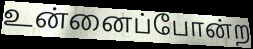
உன்னைப்போன்ற